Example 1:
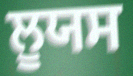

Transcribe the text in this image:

ਲੂਯਸ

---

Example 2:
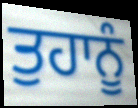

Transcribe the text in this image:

ਤੁਹਾਨੂੰ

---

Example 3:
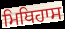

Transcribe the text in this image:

ਮਿਥਿਹਾਸ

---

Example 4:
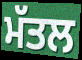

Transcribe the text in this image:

ਮੱਤਲ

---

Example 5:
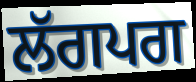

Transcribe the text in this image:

ਲੱਗਪਗ